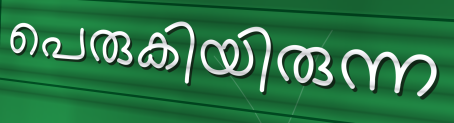
പെരുകിയിരുന്ന